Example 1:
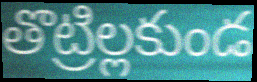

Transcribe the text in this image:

తొట్రిల్లకుండ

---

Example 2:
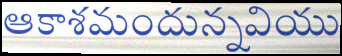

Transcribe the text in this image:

ఆకాశమందున్నవియు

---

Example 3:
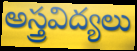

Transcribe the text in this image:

అస్త్రవిద్యలు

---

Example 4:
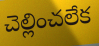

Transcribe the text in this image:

చెల్లించలేక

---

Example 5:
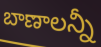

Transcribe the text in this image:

బాణాలన్నీ